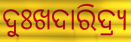
ଦୁଃଖଦାରିଦ୍ର୍ୟ